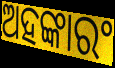
ଅହଙ୍କାରଂ